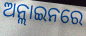
ଅନ୍ଲାଇନରେ